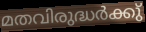
മതവിരുദ്ധർക്കു്